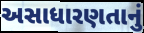
અસાધારણતાનું